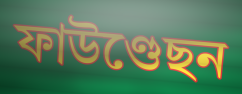
ফাউণ্ডেছন